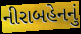
નીરાબહેનનું